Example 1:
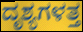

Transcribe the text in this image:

ದೃಶ್ಯಗಳತ್ತ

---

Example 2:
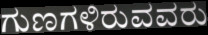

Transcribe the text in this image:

ಗುಣಗಳಿರುವವರು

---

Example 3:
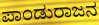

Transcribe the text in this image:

ಪಾಂಡುರಾಜನ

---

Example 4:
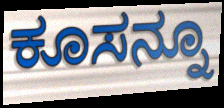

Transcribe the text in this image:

ಕೂಸನ್ನೂ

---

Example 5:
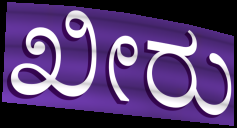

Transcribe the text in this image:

ಖೀರು